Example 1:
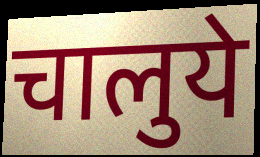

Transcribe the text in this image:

चालुये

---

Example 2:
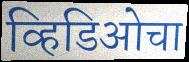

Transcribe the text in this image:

व्हिडिओचा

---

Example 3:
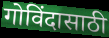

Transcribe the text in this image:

गोविंदासाठी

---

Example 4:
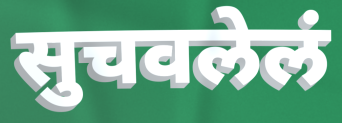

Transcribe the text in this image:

सुचवलेलं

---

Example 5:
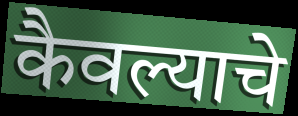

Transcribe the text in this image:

कैवल्याचे